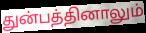
துன்பத்தினாலும்